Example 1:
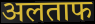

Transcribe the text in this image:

अलताफ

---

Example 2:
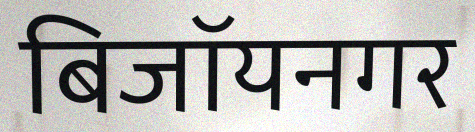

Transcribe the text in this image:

बिजॉयनगर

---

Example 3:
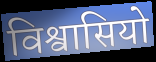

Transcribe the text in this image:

विश्वासियो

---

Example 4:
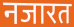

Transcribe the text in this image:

नजारत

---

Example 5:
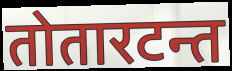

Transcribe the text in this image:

तोतारटन्त